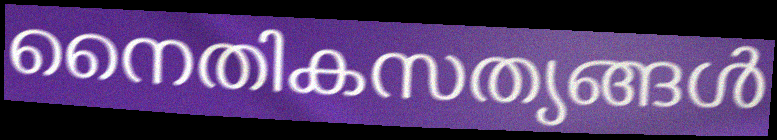
നൈതികസത്യങ്ങൾ